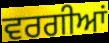
ਵਰਗੀਆਂ